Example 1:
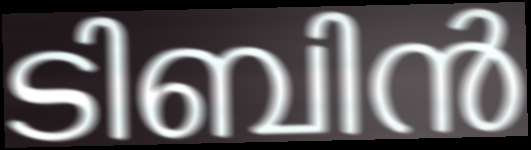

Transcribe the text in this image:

ടിബിൻ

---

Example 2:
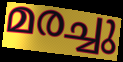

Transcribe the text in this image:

മരച്ചു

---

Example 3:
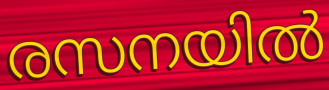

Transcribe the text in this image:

രസനയിൽ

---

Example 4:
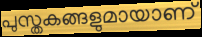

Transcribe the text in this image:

പുസ്തകങ്ങളുമായാണ്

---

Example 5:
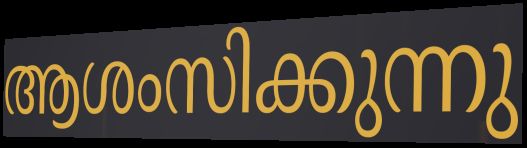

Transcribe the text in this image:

ആശംസിക്കുന്നു